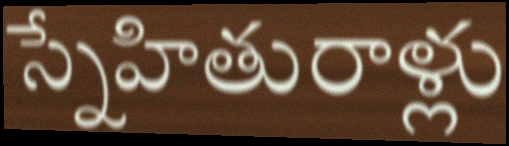
స్నేహితురాళ్లు